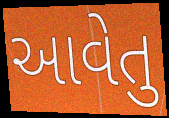
આવેતુ